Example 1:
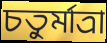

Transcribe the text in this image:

চতুর্মাত্রা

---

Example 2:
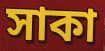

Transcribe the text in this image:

সাকা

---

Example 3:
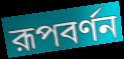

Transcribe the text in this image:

রূপবর্ণন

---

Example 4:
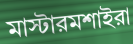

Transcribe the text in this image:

মাস্টারমশাইরা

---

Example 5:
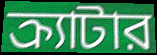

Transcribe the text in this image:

ক্র্যাটার